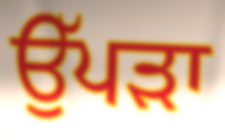
ਉੱਪੜਾ